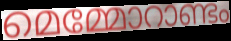
മെമ്മോറാണ്ടം